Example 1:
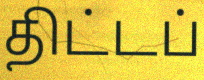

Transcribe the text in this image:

திட்டப்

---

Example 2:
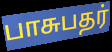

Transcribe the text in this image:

பாசுபதர்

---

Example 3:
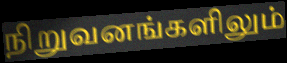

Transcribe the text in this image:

நிறுவனங்களிலும்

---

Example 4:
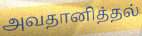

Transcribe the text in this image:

அவதானித்தல்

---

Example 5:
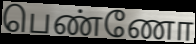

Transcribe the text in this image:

பெண்ணோ